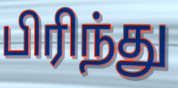
பிரிந்து